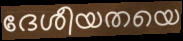
ദേശീയതയെ